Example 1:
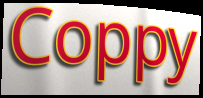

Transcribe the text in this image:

Coppy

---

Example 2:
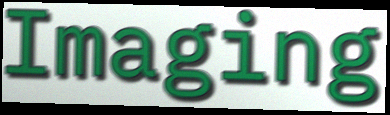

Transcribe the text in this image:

Imaging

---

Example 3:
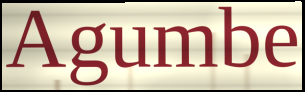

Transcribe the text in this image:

Agumbe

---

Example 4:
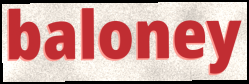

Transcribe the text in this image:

baloney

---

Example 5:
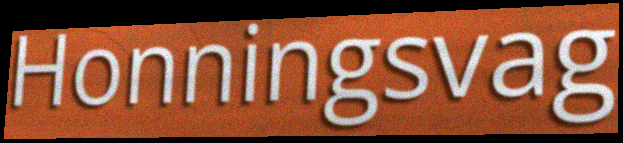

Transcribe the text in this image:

Honningsvag